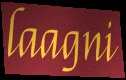
laagni